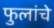
फुलांचे